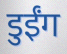
डुईंग